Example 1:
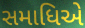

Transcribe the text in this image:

સમાધિએ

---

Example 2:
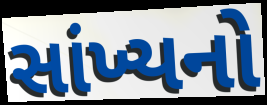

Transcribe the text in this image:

સાંખ્યનો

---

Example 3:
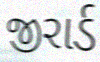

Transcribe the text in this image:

જીરાર્ડ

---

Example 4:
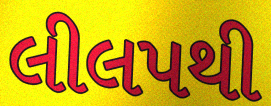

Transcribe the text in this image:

લીલપથી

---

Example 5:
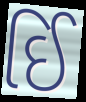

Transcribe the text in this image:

ઈિ